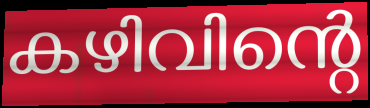
കഴിവിന്റെ